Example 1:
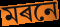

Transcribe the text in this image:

মৰনে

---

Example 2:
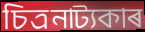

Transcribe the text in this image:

চিত্ৰনাট্যকাৰ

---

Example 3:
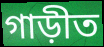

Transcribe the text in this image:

গাড়ীত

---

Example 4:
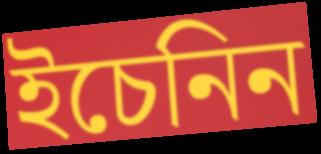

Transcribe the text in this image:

ইচেনিন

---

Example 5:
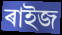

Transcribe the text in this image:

ৰাইজ